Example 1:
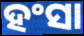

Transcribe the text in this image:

ହଂସା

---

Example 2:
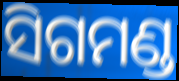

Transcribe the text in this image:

ସିଗମଣ୍ଡ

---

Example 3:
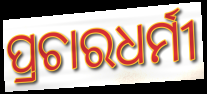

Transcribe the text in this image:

ପ୍ରଚାରଧର୍ମୀ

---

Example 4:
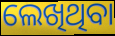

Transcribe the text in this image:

ଲେଖିଥିବା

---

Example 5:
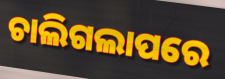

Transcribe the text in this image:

ଚାଲିଗଲାପରେ